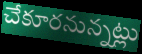
చేకూరనున్నట్లు